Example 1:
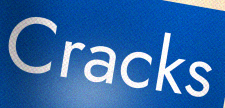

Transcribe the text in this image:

Cracks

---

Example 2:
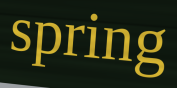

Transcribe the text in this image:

spring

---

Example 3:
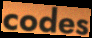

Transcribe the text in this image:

codes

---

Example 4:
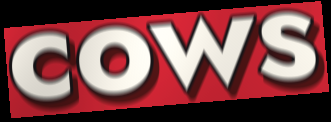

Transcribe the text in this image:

cows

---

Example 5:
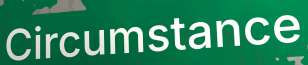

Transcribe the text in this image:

Circumstance